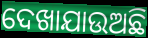
ଦେଖାଯାଉଅଛି